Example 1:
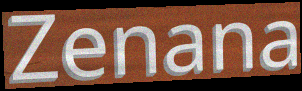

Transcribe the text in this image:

Zenana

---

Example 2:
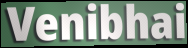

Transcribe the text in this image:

Venibhai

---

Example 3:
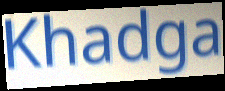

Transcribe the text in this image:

Khadga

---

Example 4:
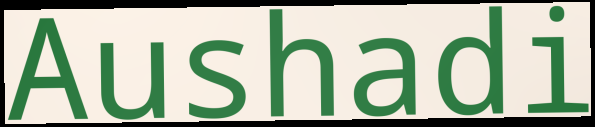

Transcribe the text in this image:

Aushadi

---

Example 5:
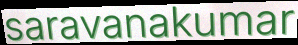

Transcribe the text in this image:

saravanakumar